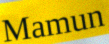
Mamun